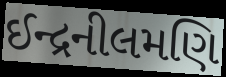
ઈન્દ્રનીલમણિ